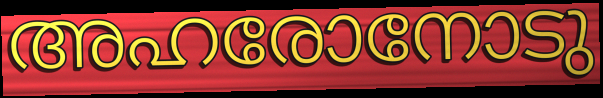
അഹരോനോടു